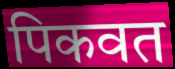
पिकवत